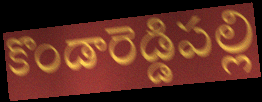
కొండారెడ్డిపల్లి